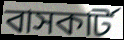
বাসকার্ট